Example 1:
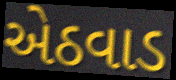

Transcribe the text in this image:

એઠવાડ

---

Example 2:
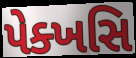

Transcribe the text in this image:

પેક્ખસિ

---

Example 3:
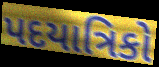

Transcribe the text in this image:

પદયાત્રિકો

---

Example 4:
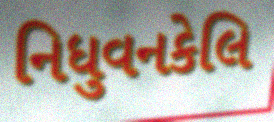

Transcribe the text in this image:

નિધુવનકેલિ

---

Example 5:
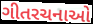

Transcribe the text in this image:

ગીતરચનાઓ